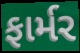
ફાર્મર